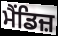
ਮੈਂਡਿਜ਼